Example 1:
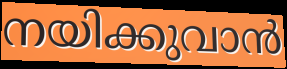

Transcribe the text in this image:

നയിക്കുവാൻ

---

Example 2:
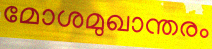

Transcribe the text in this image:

മോശമുഖാന്തരം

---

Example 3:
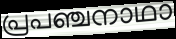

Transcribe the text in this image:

പ്രപഞ്ചനാഥാ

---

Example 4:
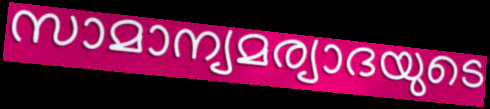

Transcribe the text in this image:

സാമാന്യമര്യാദയുടെ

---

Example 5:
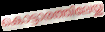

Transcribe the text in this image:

കൊട്ടാരത്തിലേയ്ക്കു